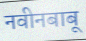
नवीनबाबू